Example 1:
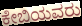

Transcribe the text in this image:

ಕೇಬಿಯವರು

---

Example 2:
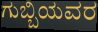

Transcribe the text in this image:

ಗುಬ್ಬಿಯವರ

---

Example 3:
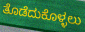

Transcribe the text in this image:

ತೊಡೆದುಕೊಳ್ಳಲು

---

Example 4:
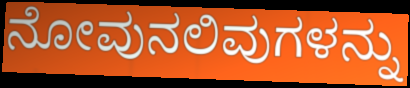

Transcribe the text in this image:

ನೋವುನಲಿವುಗಳನ್ನು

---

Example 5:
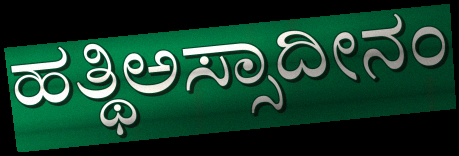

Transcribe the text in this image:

ಹತ್ಥಿಅಸ್ಸಾದೀನಂ